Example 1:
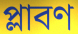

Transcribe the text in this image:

প্লাবণ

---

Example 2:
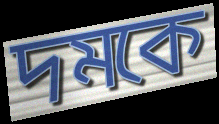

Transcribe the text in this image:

দমকে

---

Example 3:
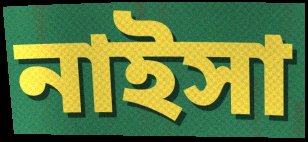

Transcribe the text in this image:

নাইসা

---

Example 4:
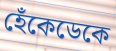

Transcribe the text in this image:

হেঁকেডেকে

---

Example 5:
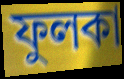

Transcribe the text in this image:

ফুলকা